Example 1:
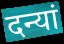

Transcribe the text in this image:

दन्यां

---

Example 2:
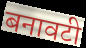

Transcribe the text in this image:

बनावटी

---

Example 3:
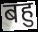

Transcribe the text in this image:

बहु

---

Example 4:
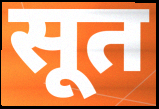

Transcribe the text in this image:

सूत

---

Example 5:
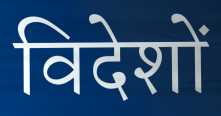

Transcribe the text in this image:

विदेशों